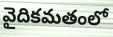
వైదికమతంలో